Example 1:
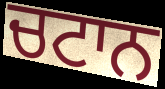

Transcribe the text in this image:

ਚਟਾਨ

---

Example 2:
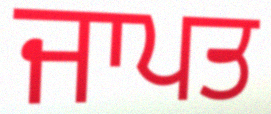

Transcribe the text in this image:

ਜਾਪਤ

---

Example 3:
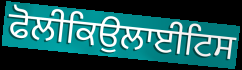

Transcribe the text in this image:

ਫੋਲੀਕਿਉਲਾਈਟਿਸ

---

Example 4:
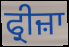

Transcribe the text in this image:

ਫ੍ਰੀਜ਼ਾ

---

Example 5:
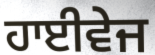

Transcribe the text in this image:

ਹਾਈਵੇਜ